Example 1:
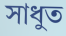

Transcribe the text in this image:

সাধুত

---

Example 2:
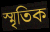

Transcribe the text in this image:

স্মৃতিক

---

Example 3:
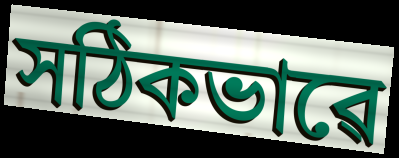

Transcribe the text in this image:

সঠিকভাৱে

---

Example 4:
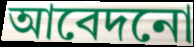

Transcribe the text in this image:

আবেদনো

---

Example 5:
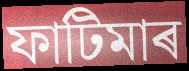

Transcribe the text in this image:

ফাটিমাৰ